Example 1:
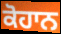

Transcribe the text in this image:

ਕੋਹਾਨ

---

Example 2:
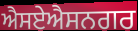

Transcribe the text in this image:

ਐਸਏਐਸਨਗਰ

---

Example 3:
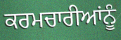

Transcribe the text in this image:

ਕਰਮਚਾਰੀਆਂਨੂੰ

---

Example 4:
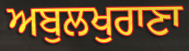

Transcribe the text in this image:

ਅਬੁਲਖੁਰਾਣਾ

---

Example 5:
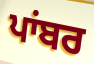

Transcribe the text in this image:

ਪਾਂਬਰ